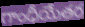
గాంధీయేతర